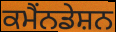
ਕਮੈਂਨਡੇਸ਼ਨ